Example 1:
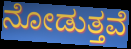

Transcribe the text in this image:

ನೋಡುತ್ತವೆ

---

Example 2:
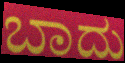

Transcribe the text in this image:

ಬಾದು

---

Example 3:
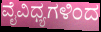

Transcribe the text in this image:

ವೈವಿಧ್ಯಗಳಿಂದ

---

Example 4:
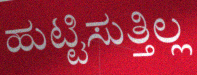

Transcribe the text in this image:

ಹುಟ್ಟಿಸುತ್ತಿಲ್ಲ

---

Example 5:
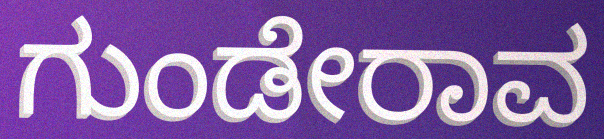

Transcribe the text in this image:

ಗುಂಡೇರಾವ